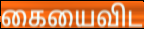
கையைவிட